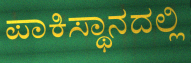
ಪಾಕಿಸ್ಥಾನದಲ್ಲಿ